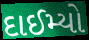
દાઈમ્યો